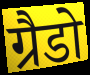
ग्रैडो